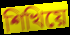
শিখিয়ে